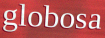
globosa